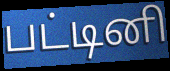
பட்டினி